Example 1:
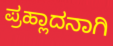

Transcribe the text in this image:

ಪ್ರಹ್ಲಾದನಾಗಿ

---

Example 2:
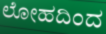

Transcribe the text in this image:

ಲೋಹದಿಂದ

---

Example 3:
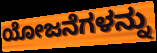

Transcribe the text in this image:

ಯೋಜನೆಗಳನ್ನು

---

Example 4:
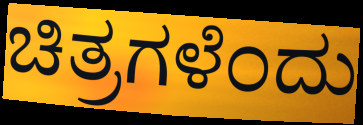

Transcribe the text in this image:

ಚಿತ್ರಗಳೆಂದು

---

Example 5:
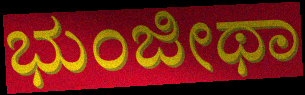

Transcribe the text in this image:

ಭುಂಜೀಥಾ